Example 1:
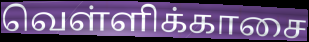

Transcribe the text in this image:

வெள்ளிக்காசை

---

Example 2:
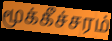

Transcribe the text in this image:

மூக்கீச்சரம்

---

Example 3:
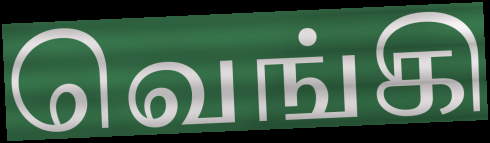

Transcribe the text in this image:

வெங்கி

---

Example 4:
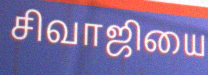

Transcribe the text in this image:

சிவாஜியை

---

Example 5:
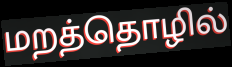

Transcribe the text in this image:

மறத்தொழில்